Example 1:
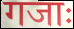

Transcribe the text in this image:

गजाः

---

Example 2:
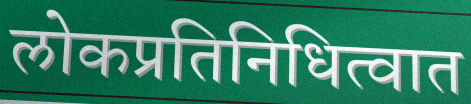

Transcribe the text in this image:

लोकप्रतिनिधित्वात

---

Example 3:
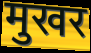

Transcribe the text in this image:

मुखर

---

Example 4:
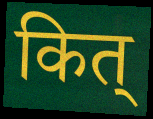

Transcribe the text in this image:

कित्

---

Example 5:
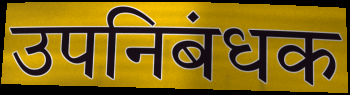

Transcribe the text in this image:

उपनिबंधक